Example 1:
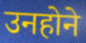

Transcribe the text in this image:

उनहोने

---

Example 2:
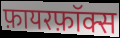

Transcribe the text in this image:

फ़ायरफ़ॉक्स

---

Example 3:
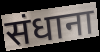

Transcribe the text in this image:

संधाना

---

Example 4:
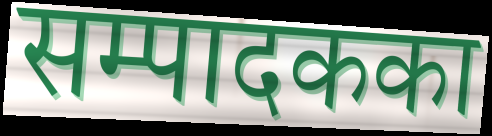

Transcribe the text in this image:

सम्पादकका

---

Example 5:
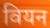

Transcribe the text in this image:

वियन